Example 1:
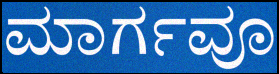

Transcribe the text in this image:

ಮಾರ್ಗವೂ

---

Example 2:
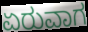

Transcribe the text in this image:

ಏರುವಾಗ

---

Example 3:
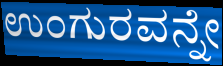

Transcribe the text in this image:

ಉಂಗುರವನ್ನೇ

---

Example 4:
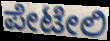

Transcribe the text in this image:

ಪೇಟೇಲಿ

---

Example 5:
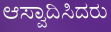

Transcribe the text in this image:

ಆಸ್ವಾದಿಸಿದರು